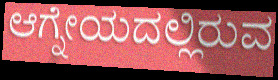
ಆಗ್ನೇಯದಲ್ಲಿರುವ